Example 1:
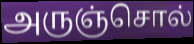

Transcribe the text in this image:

அருஞ்சொல்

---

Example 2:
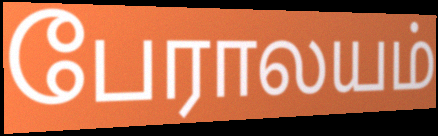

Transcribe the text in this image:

பேராலயம்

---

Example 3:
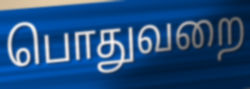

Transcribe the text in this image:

பொதுவறை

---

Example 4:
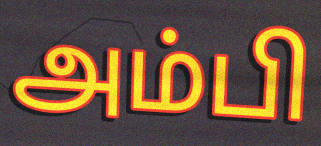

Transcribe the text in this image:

அம்பி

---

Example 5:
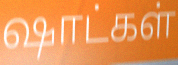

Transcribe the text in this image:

ஷாட்கள்